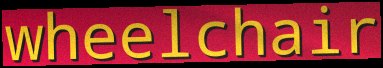
wheelchair